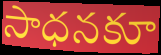
సాధనకూ